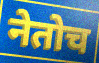
नेतोच